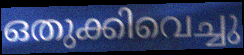
ഒതുക്കിവെച്ചു